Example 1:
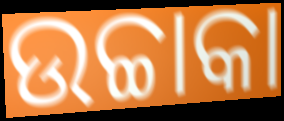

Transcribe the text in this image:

ଉଚ୍ଚାକା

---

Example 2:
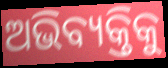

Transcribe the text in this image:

ଅଭିବ୍ୟକ୍ତିକୁ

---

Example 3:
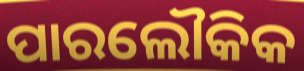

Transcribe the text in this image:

ପାରଲୌକିକ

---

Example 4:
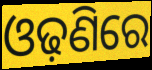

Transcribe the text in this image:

ଓଢ଼ଣିରେ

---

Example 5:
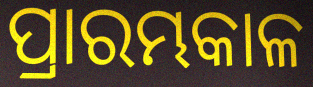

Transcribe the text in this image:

ପ୍ରାରମ୍ଭକାଳ